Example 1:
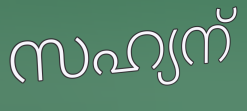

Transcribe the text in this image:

സഹ്യന്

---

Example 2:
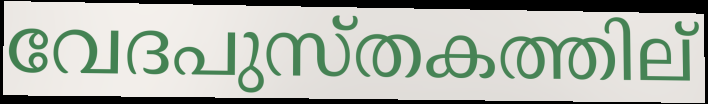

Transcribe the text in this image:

വേദപുസ്തകത്തില്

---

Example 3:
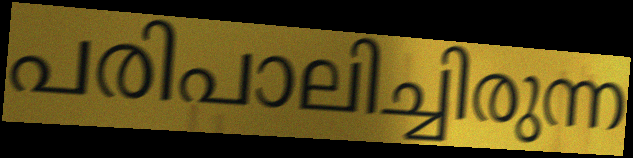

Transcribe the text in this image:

പരിപാലിച്ചിരുന്ന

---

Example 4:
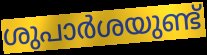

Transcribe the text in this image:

ശുപാർശയുണ്ട്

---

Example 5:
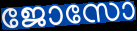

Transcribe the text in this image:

ജോസോ